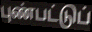
புண்பட்டுப்